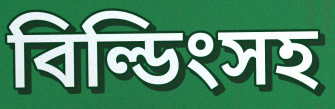
বিল্ডিংসহ